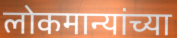
लोकमान्यांच्या